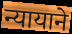
न्यायाने